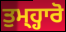
ਤੁਮ੍ਹ੍ਹਾਰੋ